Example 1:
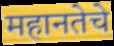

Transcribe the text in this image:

महानतेचे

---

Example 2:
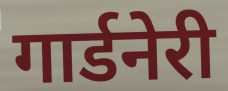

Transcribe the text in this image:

गार्डनेरी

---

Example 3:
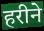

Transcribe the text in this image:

हरीने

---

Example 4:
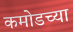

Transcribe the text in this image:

कमोडच्या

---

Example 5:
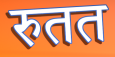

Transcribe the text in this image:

रुतत